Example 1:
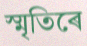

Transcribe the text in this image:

স্মৃতিৰে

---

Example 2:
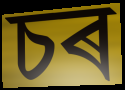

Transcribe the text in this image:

চৰ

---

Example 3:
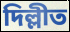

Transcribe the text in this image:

দিল্লীত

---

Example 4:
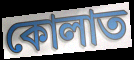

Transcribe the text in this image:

কোলাত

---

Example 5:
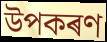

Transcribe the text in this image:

উপকৰণ